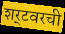
शर्टवरची